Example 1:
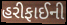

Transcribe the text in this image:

હરીફાઈની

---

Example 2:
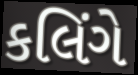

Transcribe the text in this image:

કલિંગે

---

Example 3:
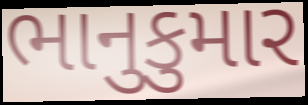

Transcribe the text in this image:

ભાનુકુમાર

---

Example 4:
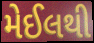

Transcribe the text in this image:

મેઈલથી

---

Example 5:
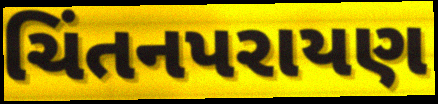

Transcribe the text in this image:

ચિંતનપરાયણ